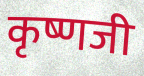
कृष्णजी